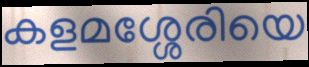
കളമശ്ശേരിയെ